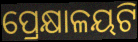
ପ୍ରେକ୍ଷାଳୟଟି